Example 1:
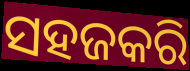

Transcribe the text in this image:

ସହଜକରି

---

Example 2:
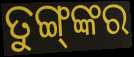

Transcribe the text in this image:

ତୁଙ୍ଗ୍‍ଙ୍କର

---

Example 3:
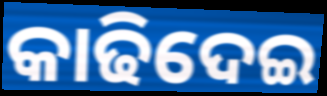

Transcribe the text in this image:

କାଢିଦେଇ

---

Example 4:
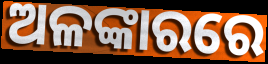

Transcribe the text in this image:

ଅଳଙ୍କାରରେ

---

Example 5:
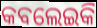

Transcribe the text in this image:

କବଲେଇକି